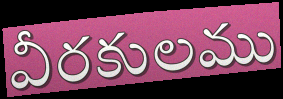
వీరకులము